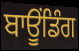
ਬਾਊਂਡਿੰਗ